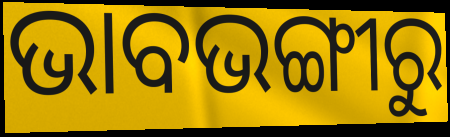
ଭାବଭଙ୍ଗୀରୁ